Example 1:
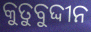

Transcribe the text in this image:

କୁତୁବୁଦ୍ଦୀନ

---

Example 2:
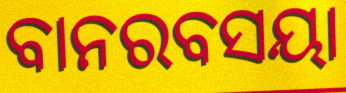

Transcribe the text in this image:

ବାନରବସୟା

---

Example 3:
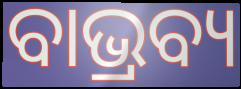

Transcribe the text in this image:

ବାଭ୍ରବ୍ୟ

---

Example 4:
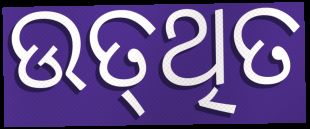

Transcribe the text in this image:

ଉତ୍‌ଥିତ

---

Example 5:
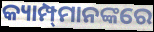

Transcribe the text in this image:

କ୍ୟାମ୍ପ୍‍ମାନଙ୍କରେ